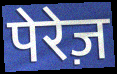
पेरेज़